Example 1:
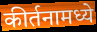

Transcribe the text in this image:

कीर्तनामध्ये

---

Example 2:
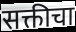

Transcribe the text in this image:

सक्तीचा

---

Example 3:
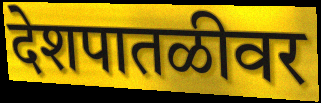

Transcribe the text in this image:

देशपातळीवर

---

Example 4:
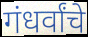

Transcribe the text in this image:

गंधर्वांचे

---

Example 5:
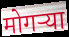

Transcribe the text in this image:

मोगऱ्या